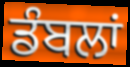
ਡੰਬਲਾਂ